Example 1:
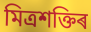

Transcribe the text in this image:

মিত্ৰশক্তিৰ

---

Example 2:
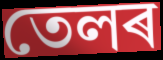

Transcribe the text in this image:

তেলৰ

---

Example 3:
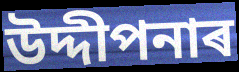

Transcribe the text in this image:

উদ্দীপনাৰ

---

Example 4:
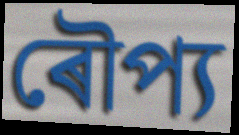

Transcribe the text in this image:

ৰৌপ্য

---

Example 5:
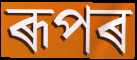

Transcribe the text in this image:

ৰূপৰ